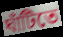
ঘাঁটিতে